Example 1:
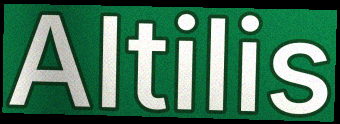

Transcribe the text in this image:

Altilis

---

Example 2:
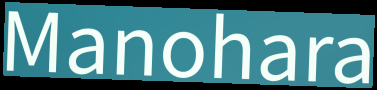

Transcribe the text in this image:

Manohara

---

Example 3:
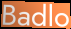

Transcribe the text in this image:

Badlo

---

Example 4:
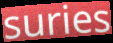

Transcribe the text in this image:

suries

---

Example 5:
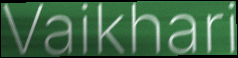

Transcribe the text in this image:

Vaikhari